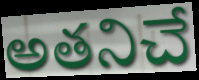
అతనిచే